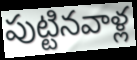
పుట్టినవాళ్ల